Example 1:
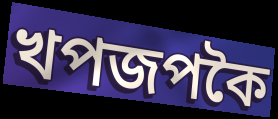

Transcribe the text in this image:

খপজপকৈ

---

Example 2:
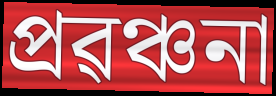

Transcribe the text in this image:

প্ৰৱঞ্চনা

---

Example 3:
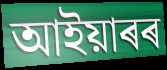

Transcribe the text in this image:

আইয়াৰৰ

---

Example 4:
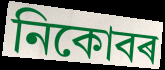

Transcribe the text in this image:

নিকোবৰ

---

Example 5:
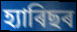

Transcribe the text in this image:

হ্যাৰিছৰ